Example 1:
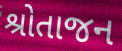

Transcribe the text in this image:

શ્રોતાજન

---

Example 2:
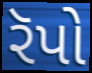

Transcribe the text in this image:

રૅપો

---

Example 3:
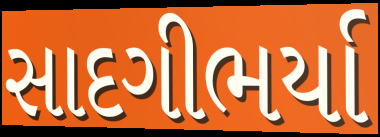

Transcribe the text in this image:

સાદગીભર્યા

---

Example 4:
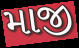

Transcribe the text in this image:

માજી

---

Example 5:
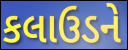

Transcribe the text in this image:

કલાઉડને